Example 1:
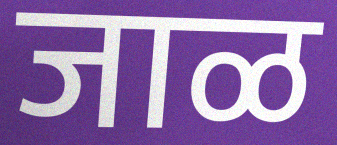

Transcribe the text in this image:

जाळ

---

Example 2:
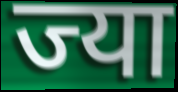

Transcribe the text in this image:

ज्या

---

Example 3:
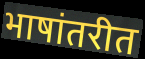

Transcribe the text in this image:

भाषांतरीत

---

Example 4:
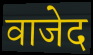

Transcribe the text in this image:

वाजेद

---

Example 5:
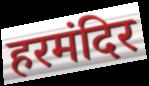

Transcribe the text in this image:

हरमंदिर